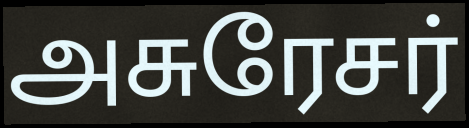
அசுரேசர்